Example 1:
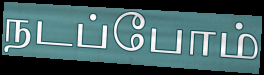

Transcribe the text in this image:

நடப்போம்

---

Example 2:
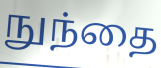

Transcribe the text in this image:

நுந்தை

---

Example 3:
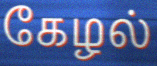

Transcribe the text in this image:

கேழல்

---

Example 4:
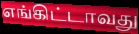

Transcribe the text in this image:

எங்கிட்டாவது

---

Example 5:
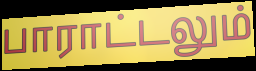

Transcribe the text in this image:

பாராட்டலும்